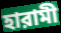
হারামী